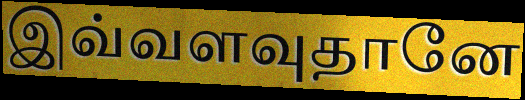
இவ்வளவுதானே